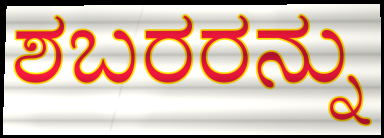
ಶಬರರನ್ನು